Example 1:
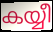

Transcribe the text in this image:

കയ്യീ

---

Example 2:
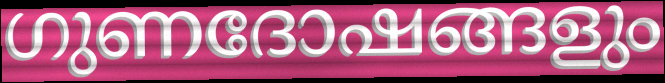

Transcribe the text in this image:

ഗുണദോഷങ്ങളും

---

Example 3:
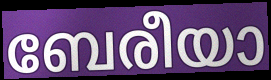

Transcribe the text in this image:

ബേരീയാ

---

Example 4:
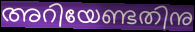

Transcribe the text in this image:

അറിയേണ്ടതിനു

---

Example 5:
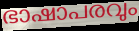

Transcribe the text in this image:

ഭാഷാപരവും